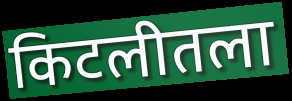
किटलीतला